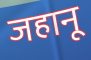
जहानू